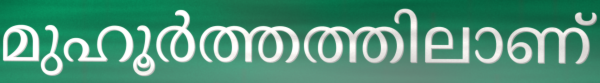
മുഹൂർത്തത്തിലാണ്